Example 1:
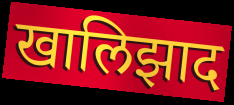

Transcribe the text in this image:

खालिझाद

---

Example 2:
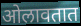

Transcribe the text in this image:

ओलावतात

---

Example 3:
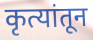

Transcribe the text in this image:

कृत्यांतून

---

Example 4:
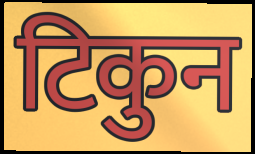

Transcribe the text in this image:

टिकुन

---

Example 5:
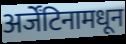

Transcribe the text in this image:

अर्जेंटिनामधून